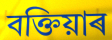
বক্তিয়াৰ